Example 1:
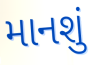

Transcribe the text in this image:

માનશું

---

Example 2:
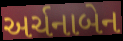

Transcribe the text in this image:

અર્ચનાબેન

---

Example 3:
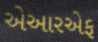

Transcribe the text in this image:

એઆરએફ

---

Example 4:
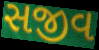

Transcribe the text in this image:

સજીવ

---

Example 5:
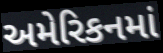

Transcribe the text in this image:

અમેરિકનમાં